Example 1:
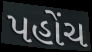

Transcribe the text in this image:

પહોંચ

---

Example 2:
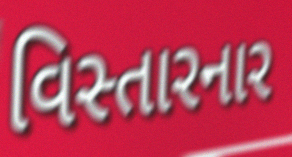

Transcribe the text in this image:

વિસ્તારનાર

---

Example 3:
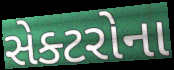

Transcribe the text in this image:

સેક્ટરોના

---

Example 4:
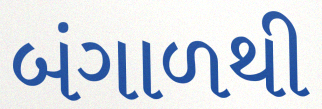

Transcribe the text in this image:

બંગાળથી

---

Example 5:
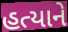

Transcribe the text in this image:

હત્યાને